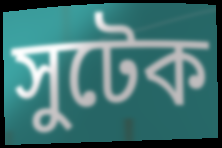
সুটেক